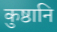
कुष्ठानि